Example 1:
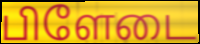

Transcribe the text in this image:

பிளேடை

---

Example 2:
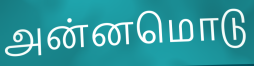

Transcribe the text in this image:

அன்னமொடு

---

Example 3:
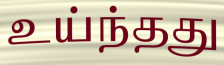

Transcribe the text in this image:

உய்ந்தது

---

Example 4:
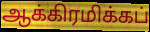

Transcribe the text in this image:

ஆக்கிரமிக்கப்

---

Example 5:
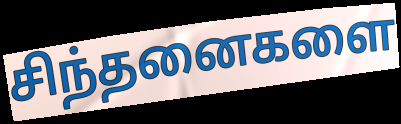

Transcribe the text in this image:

சிந்தனைகளை